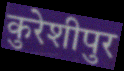
कुरेशीपुर